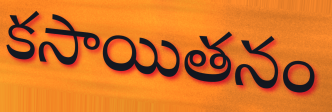
కసాయితనం